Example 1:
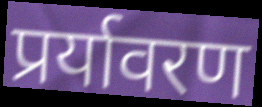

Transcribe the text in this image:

प्रर्यावरण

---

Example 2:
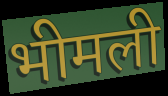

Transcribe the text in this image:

भीमली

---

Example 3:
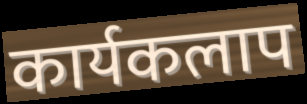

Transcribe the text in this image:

कार्यकलाप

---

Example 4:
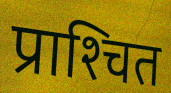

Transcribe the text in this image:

प्राश्चित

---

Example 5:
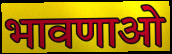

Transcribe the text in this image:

भावणाओ